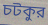
চটকুর